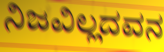
ನಿಜವಿಲ್ಲದವನ